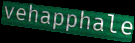
vehapphale